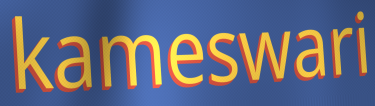
kameswari